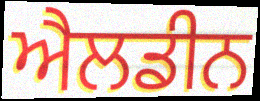
ਐਲਡੀਨ